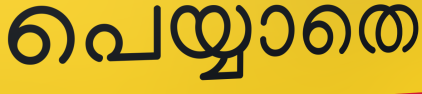
പെയ്യാതെ